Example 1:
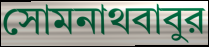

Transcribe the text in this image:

সোমনাথবাবুর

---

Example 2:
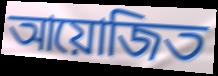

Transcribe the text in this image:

আয়োজিত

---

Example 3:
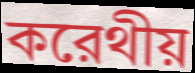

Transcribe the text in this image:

করেথীয়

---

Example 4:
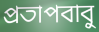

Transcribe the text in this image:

প্রতাপবাবু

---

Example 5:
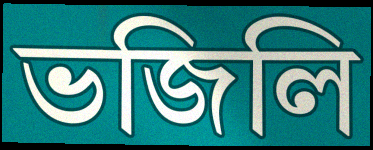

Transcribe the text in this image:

ভজিলি